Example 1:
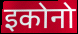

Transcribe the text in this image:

इकोनो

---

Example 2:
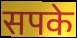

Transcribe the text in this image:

सपके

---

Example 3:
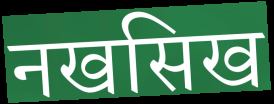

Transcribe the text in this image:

नखसिख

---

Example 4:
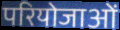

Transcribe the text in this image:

परियोजाओं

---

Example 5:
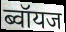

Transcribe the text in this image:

ब्वॉयज